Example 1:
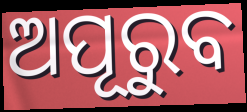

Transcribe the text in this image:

ଅପୂରୁବ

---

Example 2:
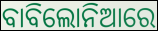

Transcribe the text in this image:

ବାବିଲୋନିଆରେ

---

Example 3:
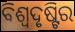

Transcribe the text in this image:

ବିଶ୍ୱଦୃଷ୍ଟିର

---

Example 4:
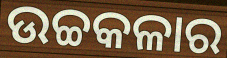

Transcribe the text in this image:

ଉଚ୍ଚକଳାର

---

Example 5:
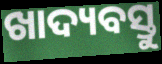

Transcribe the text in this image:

ଖାଦ୍ୟବସ୍ତୁ